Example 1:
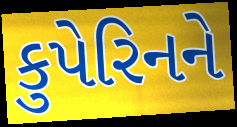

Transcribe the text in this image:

કુપેરિનને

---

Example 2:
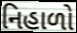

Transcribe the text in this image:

નિહાળો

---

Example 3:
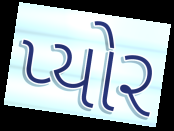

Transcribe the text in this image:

પ્યોર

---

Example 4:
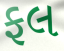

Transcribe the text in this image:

ફલ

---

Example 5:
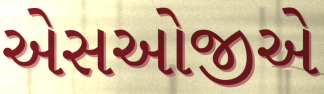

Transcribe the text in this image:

એસઓજીએ